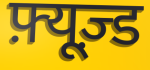
फ़्यूज़्ड